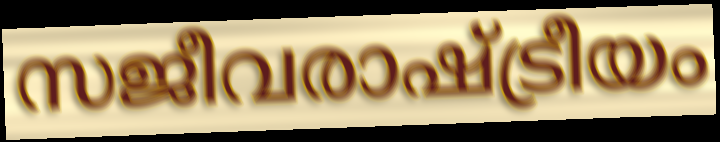
സജീവരാഷ്ട്രീയം